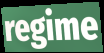
regime